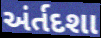
અંર્તદશા